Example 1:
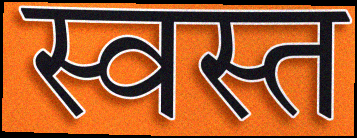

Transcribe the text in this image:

स्वस्त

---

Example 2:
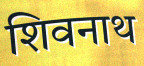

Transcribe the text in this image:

शिवनाथ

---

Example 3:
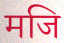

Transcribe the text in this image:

मजि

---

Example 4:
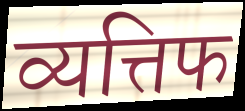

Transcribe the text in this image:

व्यत्तिफ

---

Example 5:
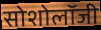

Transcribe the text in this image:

सोशोलॉजी